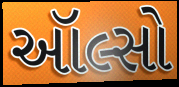
ઑલ્સો